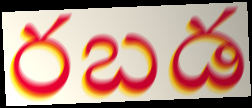
రబడ